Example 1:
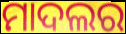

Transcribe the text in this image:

ମାଦଲର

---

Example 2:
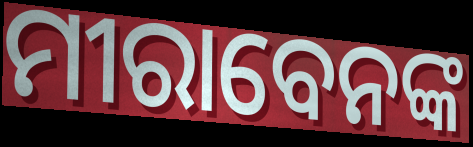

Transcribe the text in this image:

ମୀରାବେନଙ୍କ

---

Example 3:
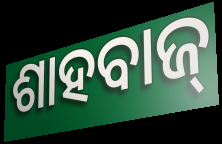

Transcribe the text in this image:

ଶାହବାଜ୍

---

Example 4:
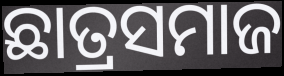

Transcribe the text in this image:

ଛାତ୍ରସମାଜ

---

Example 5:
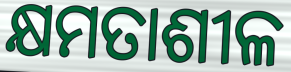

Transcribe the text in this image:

କ୍ଷମତାଶୀଳ